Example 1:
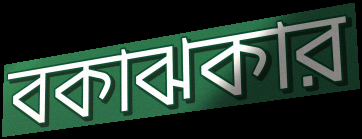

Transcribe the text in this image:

বকাঝকার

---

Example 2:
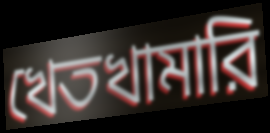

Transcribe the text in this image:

খেতখামারি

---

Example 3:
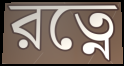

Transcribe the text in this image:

রত্নে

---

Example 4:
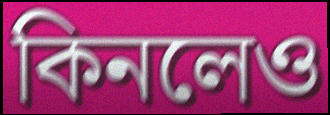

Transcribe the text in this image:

কিনলেও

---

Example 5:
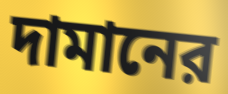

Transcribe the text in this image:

দামানের